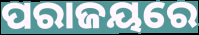
ପରାଜୟରେ